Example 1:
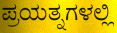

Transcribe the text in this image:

ಪ್ರಯತ್ನಗಳಲ್ಲಿ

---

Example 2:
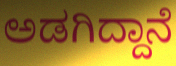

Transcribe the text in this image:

ಅಡಗಿದ್ದಾನೆ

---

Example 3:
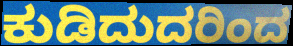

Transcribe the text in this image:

ಕುಡಿದುದರಿಂದ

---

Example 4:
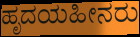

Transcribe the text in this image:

ಹೃದಯಹೀನರು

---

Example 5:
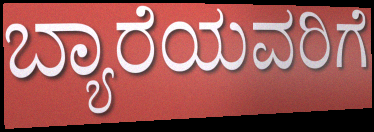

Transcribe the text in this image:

ಬ್ಯಾರೆಯವರಿಗೆ